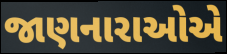
જાણનારાઓએ